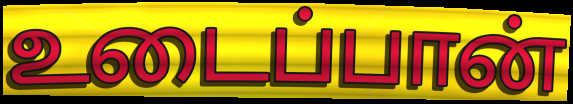
உடைப்பான்